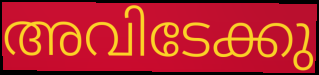
അവിടേക്കു